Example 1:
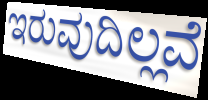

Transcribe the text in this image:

ಇರುವುದಿಲ್ಲವೆ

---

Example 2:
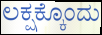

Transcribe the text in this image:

ಲಕ್ಷಕ್ಕೊಂದು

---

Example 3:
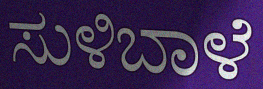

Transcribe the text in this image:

ಸುಳಿಬಾಳೆ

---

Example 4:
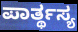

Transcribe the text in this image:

ಪಾರ್ತ್ಥಸ್ಯ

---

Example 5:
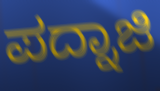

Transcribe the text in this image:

ಪದ್ನಾಜಿ